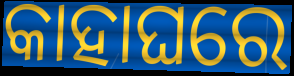
କାହାଘରେ